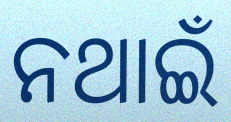
ନଥାଇଁ